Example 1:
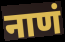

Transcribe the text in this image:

नाणं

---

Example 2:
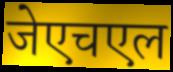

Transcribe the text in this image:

जेएचएल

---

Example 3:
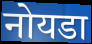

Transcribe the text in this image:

नोयडा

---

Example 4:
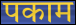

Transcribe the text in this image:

पकाम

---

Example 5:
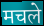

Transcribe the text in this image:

मचले